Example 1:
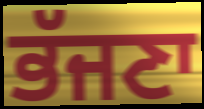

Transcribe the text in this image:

ਭੱਜਣਾ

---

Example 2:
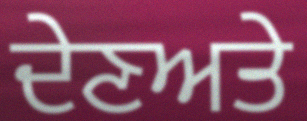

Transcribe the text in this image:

ਦੇਣਅਤੇ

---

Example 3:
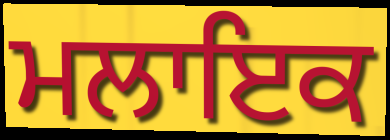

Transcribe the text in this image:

ਮਲਾਇਕ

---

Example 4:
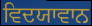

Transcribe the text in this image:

ਵਿਦਯਾਵਾਨ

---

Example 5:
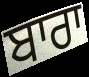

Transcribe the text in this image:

ਬਾਰਾ